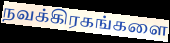
நவக்கிரகங்களை